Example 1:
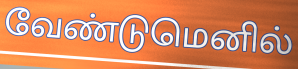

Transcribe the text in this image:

வேண்டுமெனில்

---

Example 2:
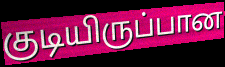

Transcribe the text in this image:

குடியிருப்பான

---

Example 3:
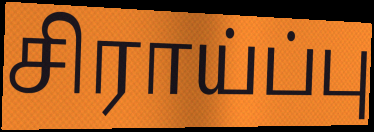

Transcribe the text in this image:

சிராய்ப்பு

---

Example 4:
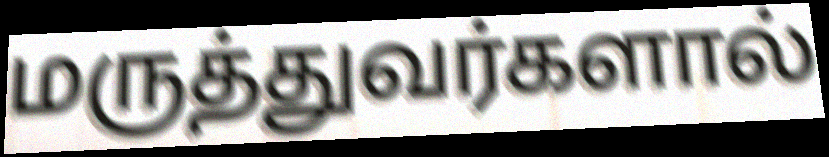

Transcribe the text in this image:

மருத்துவர்களால்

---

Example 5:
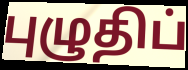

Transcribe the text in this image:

புழுதிப்